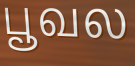
பூவல